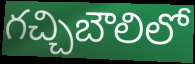
గచ్చిబౌలిలో